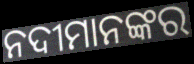
ନଦୀମାନଙ୍କର